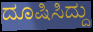
ದೂಷಿಸಿದ್ದು